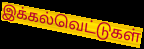
இக்கல்வெட்டுகள்